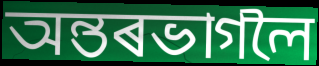
অন্তৰভাগলৈ